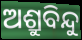
ଅଶ୍ରୁବିନ୍ଦୁ